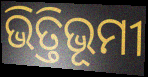
ଭିତ୍ତିଭୂମୀ